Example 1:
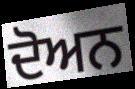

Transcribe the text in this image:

ਦੋਅਨ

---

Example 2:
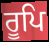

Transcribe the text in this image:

ਰੂਪਿ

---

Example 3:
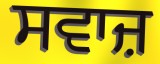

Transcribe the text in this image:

ਸਵਾਜ਼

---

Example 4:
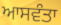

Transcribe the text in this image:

ਆਸਵੰਤਾ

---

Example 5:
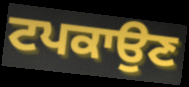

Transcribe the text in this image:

ਟਪਕਾਉਣ